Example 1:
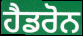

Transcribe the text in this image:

ਹੈਡਰੋਨ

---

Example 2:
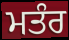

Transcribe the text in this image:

ਮਤੰਰ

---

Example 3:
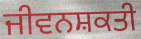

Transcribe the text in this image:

ਜੀਵਨਸ਼ਕਤੀ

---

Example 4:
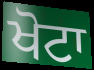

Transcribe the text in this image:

ਖੋਟਾ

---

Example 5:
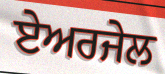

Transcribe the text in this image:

ਏਅਰਜੇਲ